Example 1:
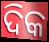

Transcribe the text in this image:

ଦିକ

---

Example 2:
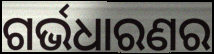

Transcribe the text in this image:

ଗର୍ଭଧାରଣର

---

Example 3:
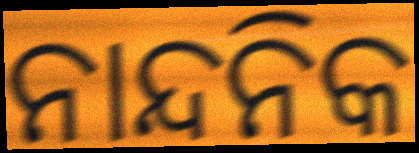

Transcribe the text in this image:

ନାନ୍ଦନିକ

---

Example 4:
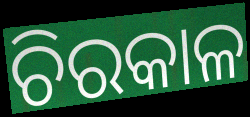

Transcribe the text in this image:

ଚିରକାଳ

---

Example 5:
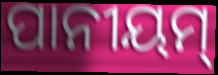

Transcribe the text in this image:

ପାନୀୟମ୍